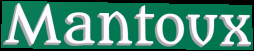
Mantoux